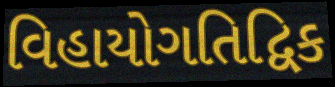
વિહાયોગતિદ્વિક